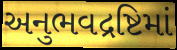
અનુભવદ્રષ્ટિમાં